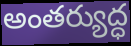
అంతర్యుద్ధ